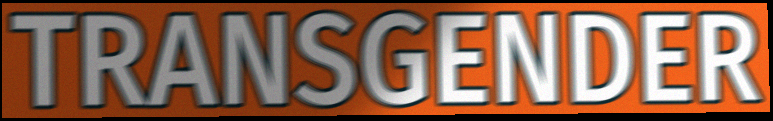
TRANSGENDER